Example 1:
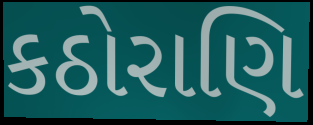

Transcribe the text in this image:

કઠોરાણિ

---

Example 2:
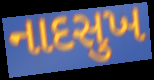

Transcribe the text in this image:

નાદસુખ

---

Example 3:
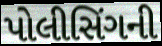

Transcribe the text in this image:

પોલીસિંગની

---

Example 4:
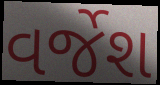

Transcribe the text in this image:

વર્જેશ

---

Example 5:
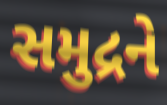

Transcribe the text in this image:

સમુદ્રને